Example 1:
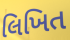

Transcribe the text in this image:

લિખિત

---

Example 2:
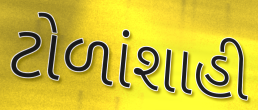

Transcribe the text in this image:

ટોળાંશાહી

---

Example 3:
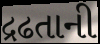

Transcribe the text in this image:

દ્રઢતાની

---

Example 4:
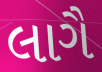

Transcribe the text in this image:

લાગૈ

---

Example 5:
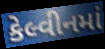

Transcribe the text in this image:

કેલ્વીનમાં